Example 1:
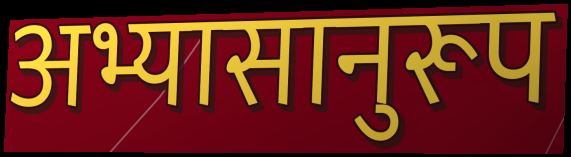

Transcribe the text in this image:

अभ्यासानुरूप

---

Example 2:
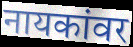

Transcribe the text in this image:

नायकांवर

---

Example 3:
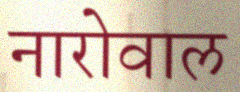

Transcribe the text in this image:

नारोवाल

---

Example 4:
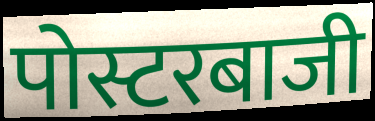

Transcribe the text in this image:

पोस्टरबाजी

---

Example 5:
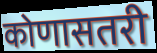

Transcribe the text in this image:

कोणासतरी